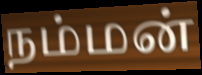
நம்மன்